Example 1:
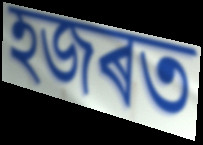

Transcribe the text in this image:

হজৰত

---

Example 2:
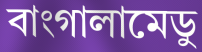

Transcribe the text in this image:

বাংগালামেডু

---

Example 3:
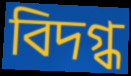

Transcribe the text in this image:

বিদগ্ধ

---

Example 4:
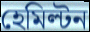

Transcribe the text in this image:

হেমিল্টন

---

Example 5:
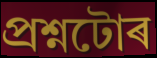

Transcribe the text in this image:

প্ৰশ্নটোৰ